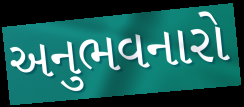
અનુભવનારો